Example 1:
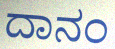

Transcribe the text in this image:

ದಾನಂ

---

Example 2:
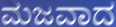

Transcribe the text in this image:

ಮಜವಾದ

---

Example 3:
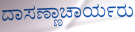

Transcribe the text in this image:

ದಾಸಣ್ಣಾಚಾರ್ಯರು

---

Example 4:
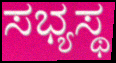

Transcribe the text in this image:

ಸಭ್ಯಸ್ಥ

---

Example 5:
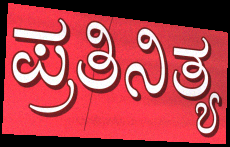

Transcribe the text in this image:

ಪ್ರತಿನಿತ್ಯ